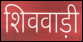
शिववाड़ी